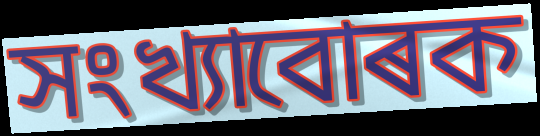
সংখ্যাবোৰক